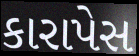
કારાપેસ